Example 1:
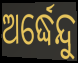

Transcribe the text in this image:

ଅର୍ଦ୍ଧେନ୍ଦୁ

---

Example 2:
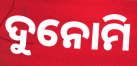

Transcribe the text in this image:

ଦୁନୋମି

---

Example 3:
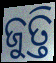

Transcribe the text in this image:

ଜୁତ୍ତି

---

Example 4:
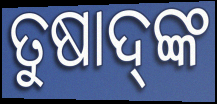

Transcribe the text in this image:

ତୁଷାଦ୍‌ଙ୍କ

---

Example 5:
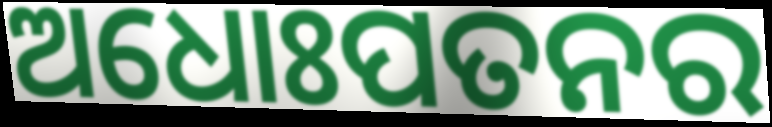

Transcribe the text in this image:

ଅଧୋଃପତନର